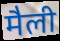
मैली